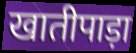
खातीपाड़ा